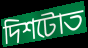
দিশটোত